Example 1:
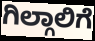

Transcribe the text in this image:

ಗಿಲ್ಗಾಲಿಗೆ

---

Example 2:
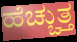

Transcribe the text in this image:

ಹೆಚ್ಚುತ್ತ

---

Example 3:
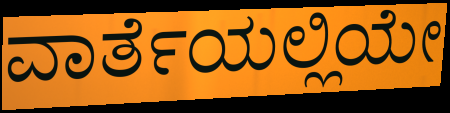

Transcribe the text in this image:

ವಾರ್ತೆಯಲ್ಲಿಯೇ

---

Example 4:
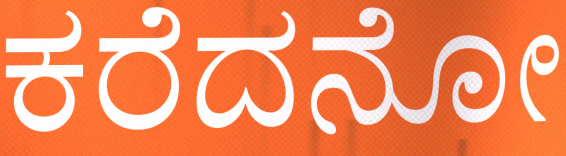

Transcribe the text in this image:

ಕರೆದನೋ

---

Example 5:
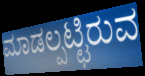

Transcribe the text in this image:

ಮಾಡಲ್ಪಟ್ಟಿರುವ